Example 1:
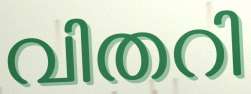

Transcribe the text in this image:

വിതറി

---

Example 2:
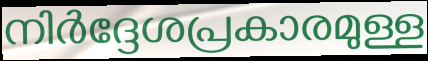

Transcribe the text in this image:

നിർദ്ദേശപ്രകാരമുള്ള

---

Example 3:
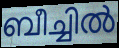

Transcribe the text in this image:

ബീച്ചിൽ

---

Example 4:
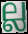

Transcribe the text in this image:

ല്ല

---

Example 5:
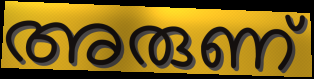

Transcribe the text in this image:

അരുണ്